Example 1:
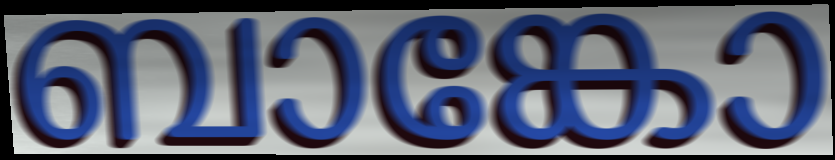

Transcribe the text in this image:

ബാങ്കോ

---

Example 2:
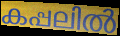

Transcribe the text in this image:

കപ്പലിൽ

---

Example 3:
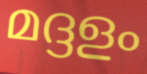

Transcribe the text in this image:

മദ്ദളം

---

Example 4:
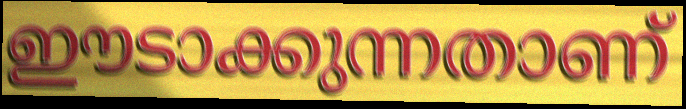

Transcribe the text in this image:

ഈടാക്കുന്നതാണ്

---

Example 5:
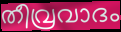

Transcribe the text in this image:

തീവ്രവാദം